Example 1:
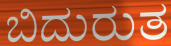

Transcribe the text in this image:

ಬಿದುರುತ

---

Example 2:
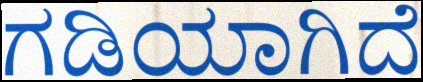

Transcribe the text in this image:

ಗಡಿಯಾಗಿದೆ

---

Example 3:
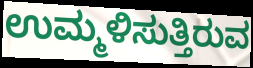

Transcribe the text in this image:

ಉಮ್ಮಳಿಸುತ್ತಿರುವ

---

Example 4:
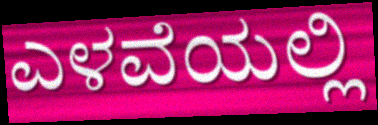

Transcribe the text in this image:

ಎಳವೆಯಲ್ಲಿ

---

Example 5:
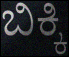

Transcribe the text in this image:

ಬಿಕ್ಕಿ